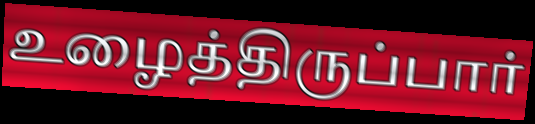
உழைத்திருப்பார்